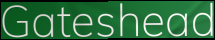
Gateshead